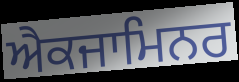
ਐਕਜਾਮਿਨਰ